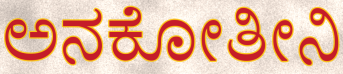
ಅನಕೋತೀನಿ